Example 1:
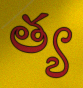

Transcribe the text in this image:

త్య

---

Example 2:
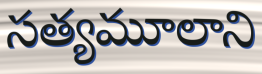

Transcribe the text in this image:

సత్యమూలాని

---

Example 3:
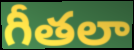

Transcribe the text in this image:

గీతలా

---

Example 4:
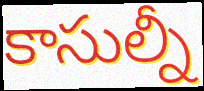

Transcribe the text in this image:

కాసుల్నీ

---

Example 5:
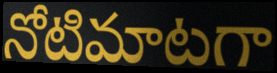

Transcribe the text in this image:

నోటిమాటగా